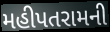
મહીપતરામની